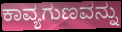
ಕಾವ್ಯಗುಣವನ್ನು